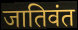
जातिवंत